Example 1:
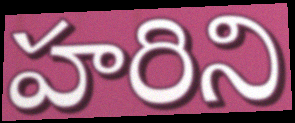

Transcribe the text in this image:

హరిని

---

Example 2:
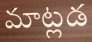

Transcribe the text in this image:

మాట్లడ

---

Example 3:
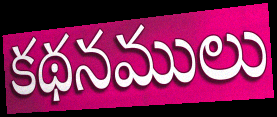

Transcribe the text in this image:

కథనములు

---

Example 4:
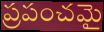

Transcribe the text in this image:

ప్రపంచమై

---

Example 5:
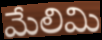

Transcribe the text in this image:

మేలిమి